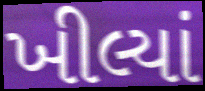
ખીલ્યાં